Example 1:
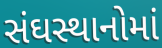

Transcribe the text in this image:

સંઘસ્થાનોમાં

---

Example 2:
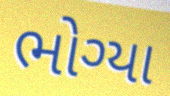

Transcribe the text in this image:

ભોગ્યા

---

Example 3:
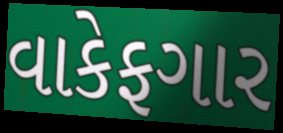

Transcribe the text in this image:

વાકેફગાર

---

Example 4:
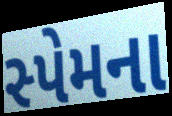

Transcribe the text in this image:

સ્પેમના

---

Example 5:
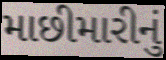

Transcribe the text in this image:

માછીમારીનું